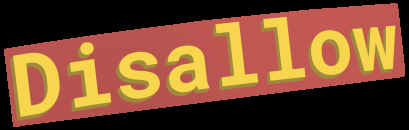
Disallow